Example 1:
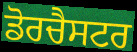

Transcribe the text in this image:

ਡੋਰਚੈਸਟਰ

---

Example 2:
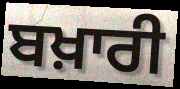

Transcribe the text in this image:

ਬਖ਼ਾਰੀ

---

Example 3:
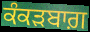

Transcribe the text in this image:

ਕੰਕੜਬਾਗ਼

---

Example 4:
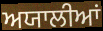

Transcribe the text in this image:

ਅਯਾਲੀਆਂ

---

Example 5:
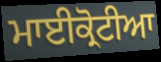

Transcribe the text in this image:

ਮਾਈਕ੍ਰੋਟੀਆ